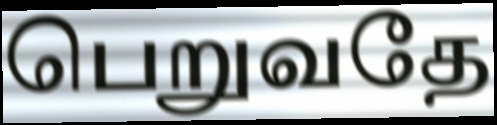
பெறுவதே